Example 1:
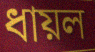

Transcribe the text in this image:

ধায়ল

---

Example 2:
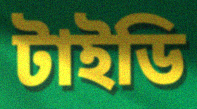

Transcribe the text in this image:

টাইডি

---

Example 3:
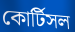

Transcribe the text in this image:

কোর্টিসল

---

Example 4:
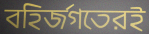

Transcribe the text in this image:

বহির্জগতেরই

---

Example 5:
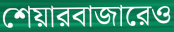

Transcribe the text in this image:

শেয়ারবাজারেও